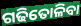
ଗଢିତୋଳିବା